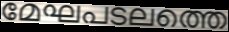
മേഘപടലത്തെ